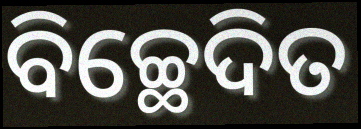
ବିଚ୍ଛେଦିତ